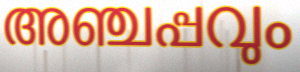
അഞ്ചപ്പവും